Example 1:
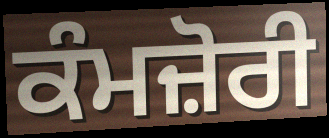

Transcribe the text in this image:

ਕੰਮਜ਼ੋਰੀ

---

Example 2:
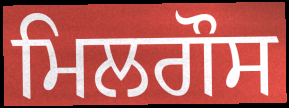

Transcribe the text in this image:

ਮਿਲਗੌਸ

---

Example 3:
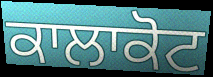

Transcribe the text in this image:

ਕਾਲਾਕੋਟ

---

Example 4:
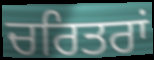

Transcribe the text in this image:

ਚਰਿਤਰਾਂ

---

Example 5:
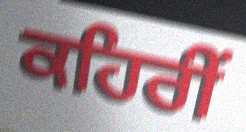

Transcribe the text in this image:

ਕਹਿਰੀਂ